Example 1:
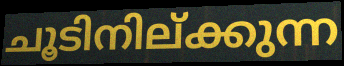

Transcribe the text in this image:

ചൂടിനില്ക്കുന്ന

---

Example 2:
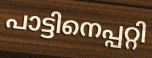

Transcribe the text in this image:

പാട്ടിനെപ്പറ്റി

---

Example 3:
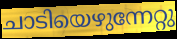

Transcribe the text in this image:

ചാടിയെഴുന്നേറ്റു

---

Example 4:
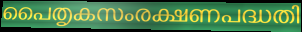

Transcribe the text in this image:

പൈതൃകസംരക്ഷണപദ്ധതി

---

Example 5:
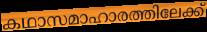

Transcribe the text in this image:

കഥാസമാഹാരത്തിലേക്ക്